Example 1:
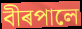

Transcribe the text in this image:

বীৰপালে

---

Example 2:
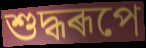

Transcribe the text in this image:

শুদ্ধৰূপে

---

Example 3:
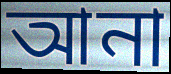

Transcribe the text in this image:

আনা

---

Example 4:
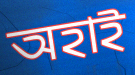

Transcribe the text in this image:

অহাই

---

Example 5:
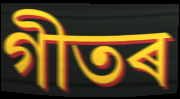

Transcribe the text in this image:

গীতৰ